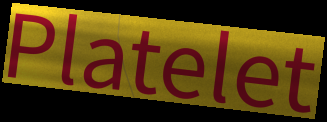
Platelet